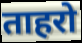
ताहरो